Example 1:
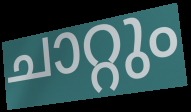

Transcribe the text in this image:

ചാറ്റും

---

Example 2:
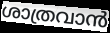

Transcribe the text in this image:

ശാത്രവാൻ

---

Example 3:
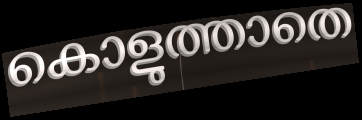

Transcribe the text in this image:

കൊളുത്താതെ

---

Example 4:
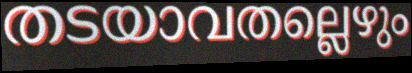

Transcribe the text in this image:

തടയാവതല്ലെഴും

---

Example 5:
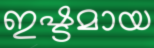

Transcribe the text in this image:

ഇഷ്ടമായ